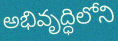
అభివృద్ధిలోని